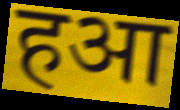
हआ